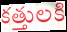
కత్తులకి